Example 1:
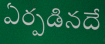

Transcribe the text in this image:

ఏర్పడినదే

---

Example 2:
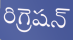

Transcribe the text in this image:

రిగ్రెషన్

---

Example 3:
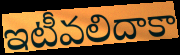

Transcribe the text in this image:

ఇటీవలిదాకా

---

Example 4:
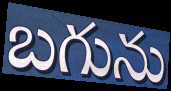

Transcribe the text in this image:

బగును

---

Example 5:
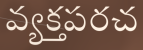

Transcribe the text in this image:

వ్యక్తపరచ